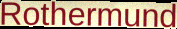
Rothermund